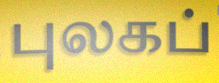
புலகப்